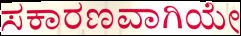
ಸಕಾರಣವಾಗಿಯೇ